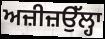
ਅਜ਼ੀਜ਼ਉੱਲ੍ਹਾ